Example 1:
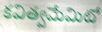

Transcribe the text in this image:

కవిత్వమేమిటో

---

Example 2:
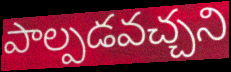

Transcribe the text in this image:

పాల్పడవచ్చని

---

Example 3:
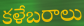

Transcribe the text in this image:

కళేబరాలు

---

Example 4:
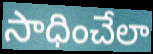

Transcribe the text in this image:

సాధించేలా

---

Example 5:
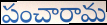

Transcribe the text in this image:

పంచారామ